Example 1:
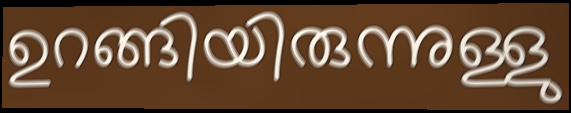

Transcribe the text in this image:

ഉറങ്ങിയിരുന്നുള്ളു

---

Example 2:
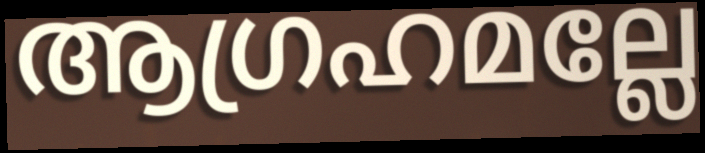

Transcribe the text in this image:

ആഗ്രഹമല്ലേ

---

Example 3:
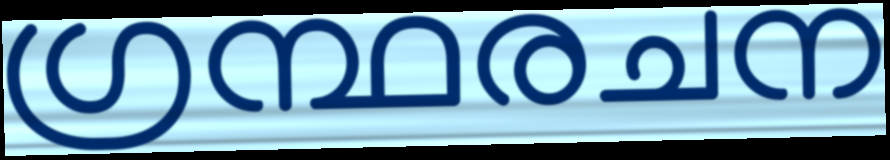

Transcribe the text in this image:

ഗ്രന്ഥരചന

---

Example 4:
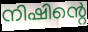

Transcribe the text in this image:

നിഷിന്റെ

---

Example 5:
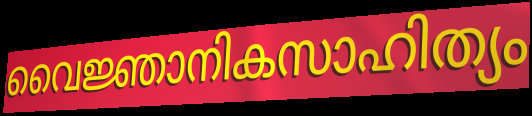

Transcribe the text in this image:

വൈജ്ഞാനികസാഹിത്യം